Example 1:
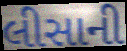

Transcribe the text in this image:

લીસાની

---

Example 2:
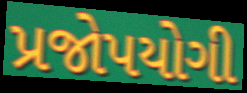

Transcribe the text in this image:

પ્રજોપયોગી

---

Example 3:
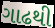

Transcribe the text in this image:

ગાઢથી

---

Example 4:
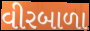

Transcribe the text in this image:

વીરબાળા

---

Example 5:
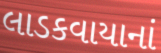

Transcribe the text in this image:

લાડકવાયાનાં